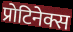
प्रोटिनेक्स